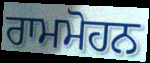
ਰਾਮਮੋਹਨ